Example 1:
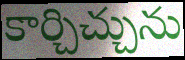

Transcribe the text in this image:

కార్చిచ్చును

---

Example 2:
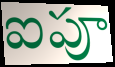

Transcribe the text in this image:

ఐపూ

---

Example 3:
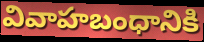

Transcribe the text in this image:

వివాహబంధానికి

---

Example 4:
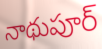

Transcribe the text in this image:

నాథుపూర్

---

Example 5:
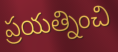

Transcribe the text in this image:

ప్రయత్నించి